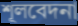
শূলবেদনা